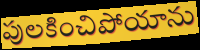
పులకించిపోయాను